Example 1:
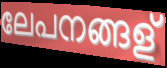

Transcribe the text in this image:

ലേപനങ്ങള്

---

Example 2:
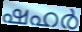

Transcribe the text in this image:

ഷഹർ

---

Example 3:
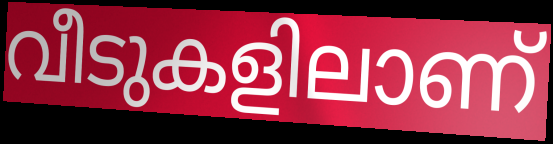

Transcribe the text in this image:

വീടുകളിലാണ്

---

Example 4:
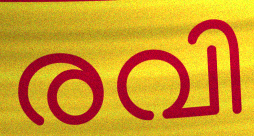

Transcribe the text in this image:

രവി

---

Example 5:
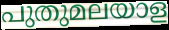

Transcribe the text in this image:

പുതുമലയാള